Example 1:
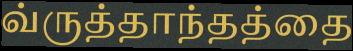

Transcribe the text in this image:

வ்ருத்தாந்தத்தை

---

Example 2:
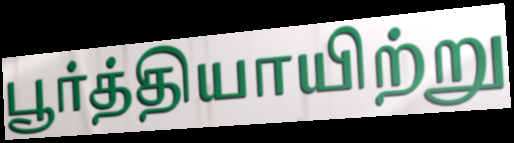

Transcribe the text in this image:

பூர்த்தியாயிற்று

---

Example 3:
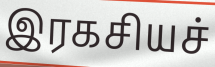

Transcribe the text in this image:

இரகசியச்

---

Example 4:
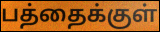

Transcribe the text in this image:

பத்தைக்குள்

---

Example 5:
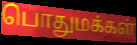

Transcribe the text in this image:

பொதுமக்கள்